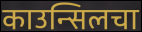
काउन्सिलचा